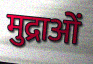
मुद्राओं